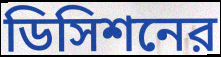
ডিসিশনের